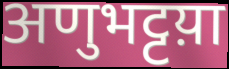
अणुभट्टय़ा